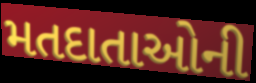
મતદાતાઓની